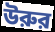
উরুর